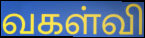
வகள்வி